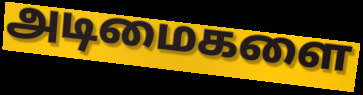
அடிமைகளை